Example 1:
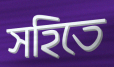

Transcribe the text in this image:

সহিতে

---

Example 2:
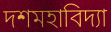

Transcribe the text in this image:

দশমহাবিদ্যা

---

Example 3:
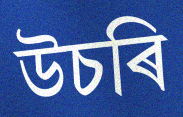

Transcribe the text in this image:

উচৰি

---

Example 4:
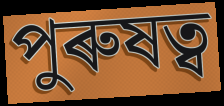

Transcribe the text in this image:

পুৰুষত্ব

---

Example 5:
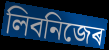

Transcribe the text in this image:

লিবনিজেৰ